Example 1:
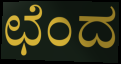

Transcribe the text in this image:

ಛೆಂದ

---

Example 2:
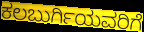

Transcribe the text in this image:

ಕಲಬುರ್ಗಿಯವರಿಗೆ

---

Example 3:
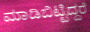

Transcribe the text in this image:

ಮಾಡಿಬಿಟ್ಟಿದ್ದರೆ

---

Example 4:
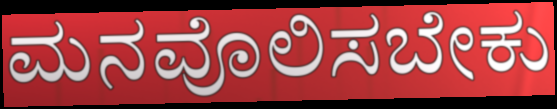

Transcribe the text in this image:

ಮನವೊಲಿಸಬೇಕು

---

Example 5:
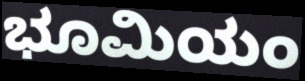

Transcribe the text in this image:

ಭೂಮಿಯಂ